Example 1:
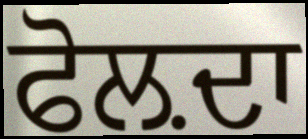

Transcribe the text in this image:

ਫੋਲ਼ਦਾ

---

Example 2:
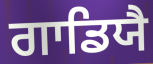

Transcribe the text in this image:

ਗਾਡਿਯੈ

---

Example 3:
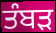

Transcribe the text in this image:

ਤੰਬੜ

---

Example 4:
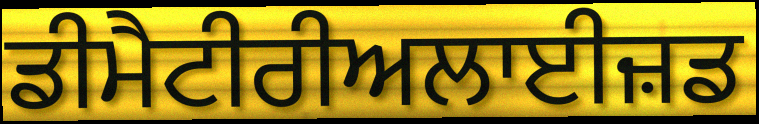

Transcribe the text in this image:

ਡੀਮੈਟੀਰੀਅਲਾਈਜ਼ਡ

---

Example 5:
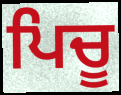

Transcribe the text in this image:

ਪਿਚੂ